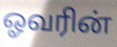
ஓவரின்